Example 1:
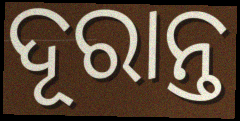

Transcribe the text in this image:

ଦୂରାନ୍ତ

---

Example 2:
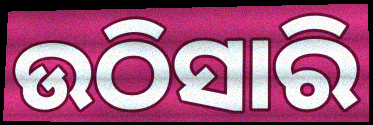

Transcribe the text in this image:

ଉଠିସାରି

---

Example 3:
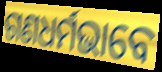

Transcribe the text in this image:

ଗଣଧର୍ମଭାବେ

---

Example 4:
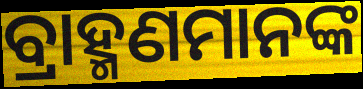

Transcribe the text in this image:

ବ୍ରାହ୍ମଣମାନଙ୍କ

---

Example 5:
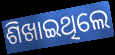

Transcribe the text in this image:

ଶିଖାଇଥିଲେ